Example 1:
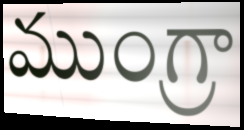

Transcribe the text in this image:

ముంగ్రా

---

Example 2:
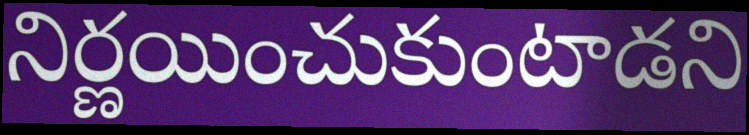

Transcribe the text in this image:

నిర్ణయించుకుంటాడని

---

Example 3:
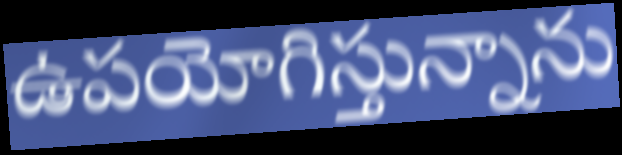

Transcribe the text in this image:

ఉపయోగిస్తున్నాను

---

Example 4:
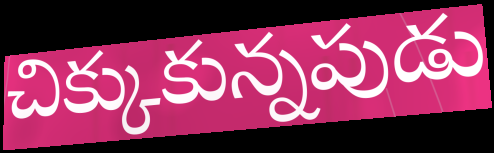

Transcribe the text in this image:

చిక్కుకున్నపుడు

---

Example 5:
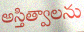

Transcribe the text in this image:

అస్తిత్వాలను